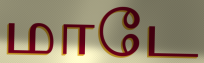
மாடே